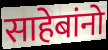
साहेबांनो